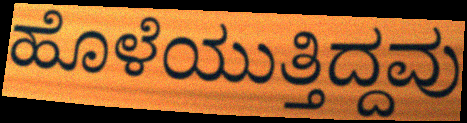
ಹೊಳೆಯುತ್ತಿದ್ದವು